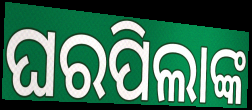
ଘରପିଲାଙ୍କ